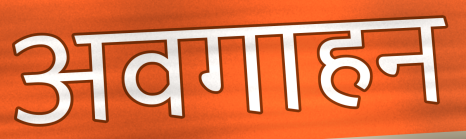
अवगाहन